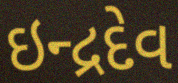
ઇન્દ્રદેવ